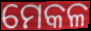
ମେକଳ